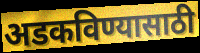
अडकविण्यासाठी